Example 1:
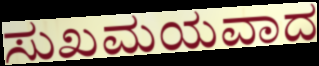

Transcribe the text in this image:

ಸುಖಮಯವಾದ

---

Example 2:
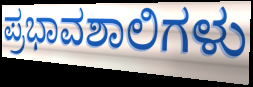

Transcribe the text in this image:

ಪ್ರಭಾವಶಾಲಿಗಳು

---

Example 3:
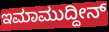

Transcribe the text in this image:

ಇಮಾಮುದ್ದೀನ್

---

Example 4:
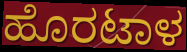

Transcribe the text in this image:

ಹೊರಟಾಳ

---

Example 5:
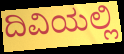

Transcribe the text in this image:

ದಿವಿಯಲ್ಲಿ